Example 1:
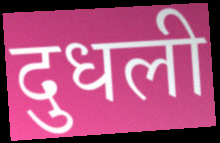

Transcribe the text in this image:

दुधली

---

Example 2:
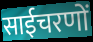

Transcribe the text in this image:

साईचरणों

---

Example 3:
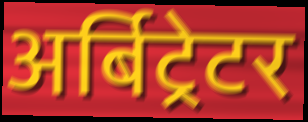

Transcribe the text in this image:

अर्बिट्रेटर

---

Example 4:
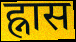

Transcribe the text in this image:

ह्नास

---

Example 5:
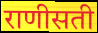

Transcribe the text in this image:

राणीसती